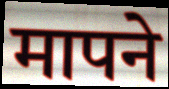
मापने